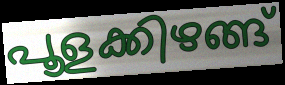
പൂളക്കിഴങ്ങ്